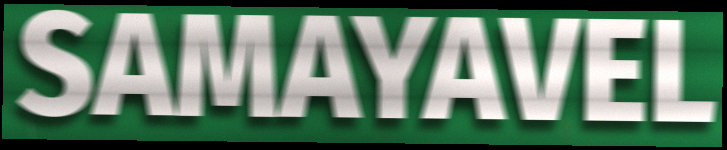
SAMAYAVEL